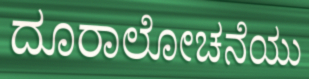
ದೂರಾಲೋಚನೆಯು